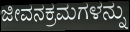
ಜೀವನಕ್ರಮಗಳನ್ನು